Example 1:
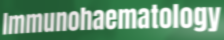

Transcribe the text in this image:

Immunohaematology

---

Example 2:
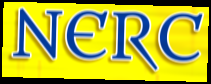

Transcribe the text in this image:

NERC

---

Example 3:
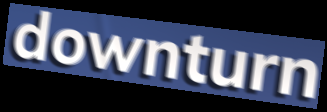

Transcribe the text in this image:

downturn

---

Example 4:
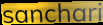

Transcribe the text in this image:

sanchari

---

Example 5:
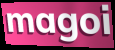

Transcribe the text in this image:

magoi